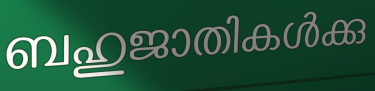
ബഹുജാതികൾക്കു